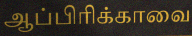
ஆப்பிரிக்காவை